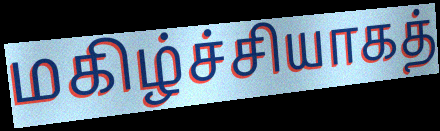
மகிழ்ச்சியாகத்